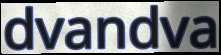
dvandva